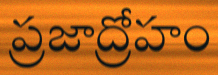
ప్రజాద్రోహం